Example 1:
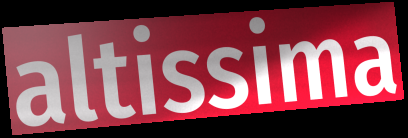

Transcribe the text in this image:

altissima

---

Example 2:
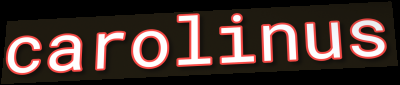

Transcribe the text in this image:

carolinus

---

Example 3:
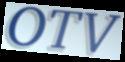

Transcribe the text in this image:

OTV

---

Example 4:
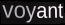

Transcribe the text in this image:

voyant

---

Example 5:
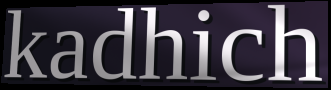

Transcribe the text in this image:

kadhich